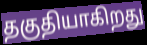
தகுதியாகிறது